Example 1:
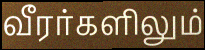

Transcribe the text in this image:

வீரர்களிலும்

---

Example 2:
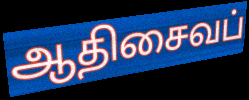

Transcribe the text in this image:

ஆதிசைவப்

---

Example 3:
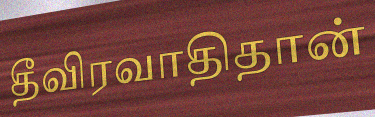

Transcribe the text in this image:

தீவிரவாதிதான்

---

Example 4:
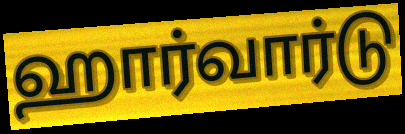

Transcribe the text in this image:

ஹார்வார்டு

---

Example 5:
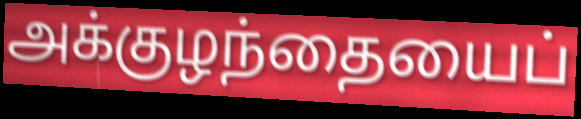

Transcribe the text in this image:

அக்குழந்தையைப்